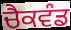
ਚੈਕਵੰਡ